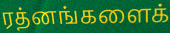
ரத்னங்களைக்